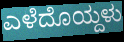
ಎಳೆದೊಯ್ದಳು